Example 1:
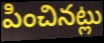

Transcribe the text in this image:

పించినట్లు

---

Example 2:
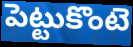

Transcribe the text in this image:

పెట్టుకొంటె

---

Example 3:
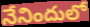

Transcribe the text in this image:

నేనిందులో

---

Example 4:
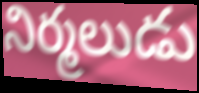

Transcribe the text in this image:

నిర్మలుడు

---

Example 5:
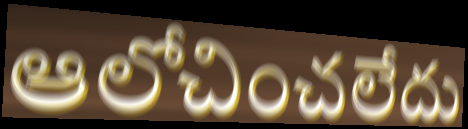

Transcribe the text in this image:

ఆలోచించలేదు